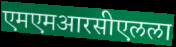
एमएमआरसीएलला